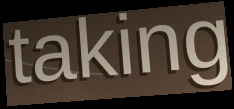
taking